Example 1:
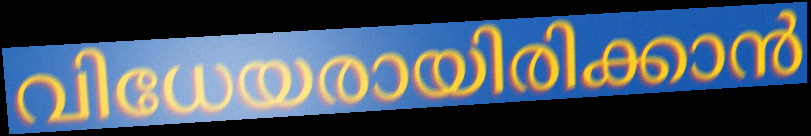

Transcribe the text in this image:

വിധേയരായിരിക്കാൻ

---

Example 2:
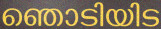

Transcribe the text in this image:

ഞൊടിയിട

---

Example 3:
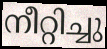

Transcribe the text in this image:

നീറ്റിച്ചു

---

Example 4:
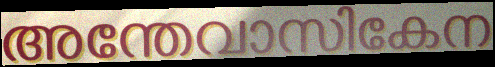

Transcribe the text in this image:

അന്തേവാസികേന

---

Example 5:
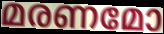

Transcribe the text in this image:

മരണമോ